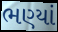
ભણ્યાં